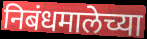
निबंधमालेच्या